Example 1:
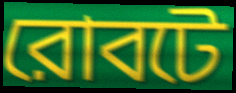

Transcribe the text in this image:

রোবটে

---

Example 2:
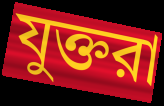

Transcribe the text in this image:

যুক্তরা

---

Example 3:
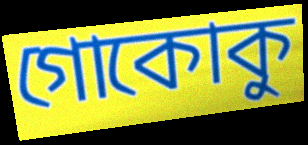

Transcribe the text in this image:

গোকোকু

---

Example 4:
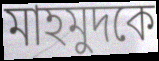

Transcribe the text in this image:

মাহমুদকে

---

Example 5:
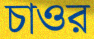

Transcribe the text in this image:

চাওর